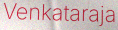
Venkataraja